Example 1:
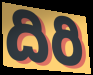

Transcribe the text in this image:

దిరి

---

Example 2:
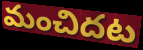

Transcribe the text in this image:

మంచిదట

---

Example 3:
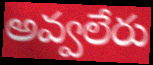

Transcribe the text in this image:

అవ్వలేరు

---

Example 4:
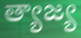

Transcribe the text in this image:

త్యాజ్య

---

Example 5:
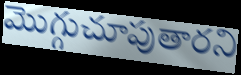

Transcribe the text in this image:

మొగ్గుచూపుతారని